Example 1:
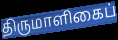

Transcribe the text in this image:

திருமாளிகைப்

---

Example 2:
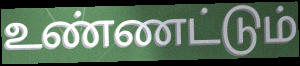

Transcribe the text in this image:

உண்ணட்டும்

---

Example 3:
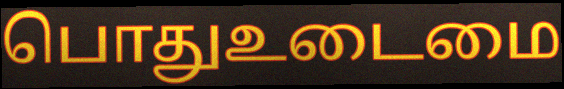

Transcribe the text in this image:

பொதுஉடைமை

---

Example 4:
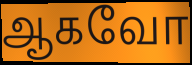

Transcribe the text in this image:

ஆகவோ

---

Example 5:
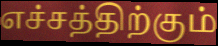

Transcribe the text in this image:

எச்சத்திற்கும்